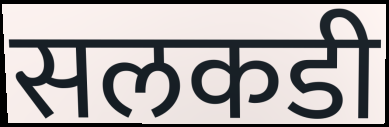
सलकडी